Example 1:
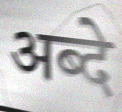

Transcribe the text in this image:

अब्दे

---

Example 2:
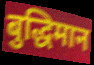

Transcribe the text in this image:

बुद्धिमान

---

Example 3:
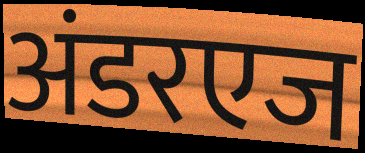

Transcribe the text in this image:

अंडरएज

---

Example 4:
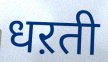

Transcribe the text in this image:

धऱती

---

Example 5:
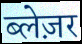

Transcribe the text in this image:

ब्लेज़र